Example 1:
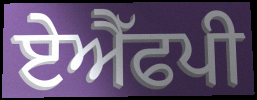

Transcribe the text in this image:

ਏਐੱਫਪੀ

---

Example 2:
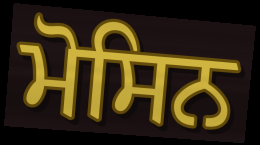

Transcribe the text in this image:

ਮੋਸਿਨ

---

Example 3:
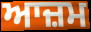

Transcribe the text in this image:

ਆਜ਼ਮ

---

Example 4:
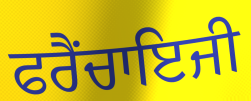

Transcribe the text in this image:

ਫਰੈਂਚਾਇਜੀ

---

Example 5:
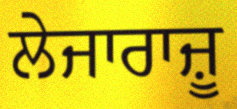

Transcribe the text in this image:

ਲੇਜਾਰਾਜ਼ੂ